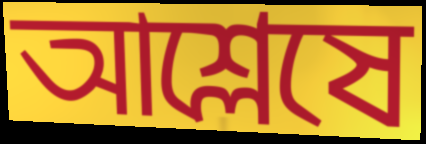
আশ্লেষে